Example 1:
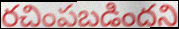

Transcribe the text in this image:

రచింపబడిందని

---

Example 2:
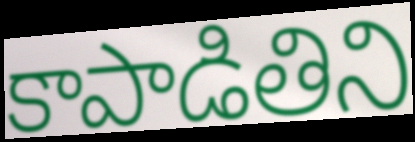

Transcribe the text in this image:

కాపాడితిని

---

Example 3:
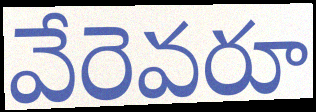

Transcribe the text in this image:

వేరెవరూ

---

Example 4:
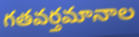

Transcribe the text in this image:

గతవర్తమానాల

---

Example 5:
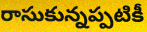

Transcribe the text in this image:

రాసుకున్నప్పటికీ